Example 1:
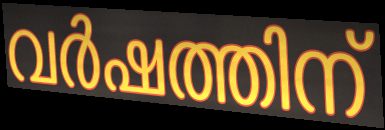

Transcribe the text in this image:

വർഷത്തിന്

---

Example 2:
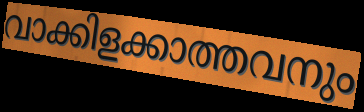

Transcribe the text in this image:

വാക്കിളക്കാത്തവനും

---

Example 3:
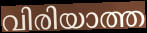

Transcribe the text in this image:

വിരിയാത്ത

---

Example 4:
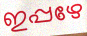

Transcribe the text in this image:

ഇപ്പഴേ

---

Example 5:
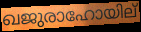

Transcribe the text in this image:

ഖജുരാഹോയില്